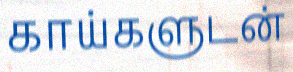
காய்களுடன்